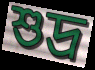
শুদ্ৰ